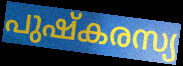
പുഷ്കരസ്യ